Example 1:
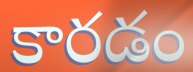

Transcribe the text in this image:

కారడం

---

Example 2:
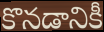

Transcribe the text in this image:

కొనడానికీ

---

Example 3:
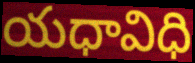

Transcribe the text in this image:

యధావిధి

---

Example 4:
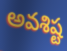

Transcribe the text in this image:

అవశిష్ట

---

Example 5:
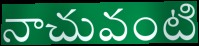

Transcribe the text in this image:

నాచువంటి